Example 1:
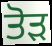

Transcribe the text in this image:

ਤੋਡ਼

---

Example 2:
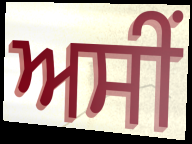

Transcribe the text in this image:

ਅਸੀੰ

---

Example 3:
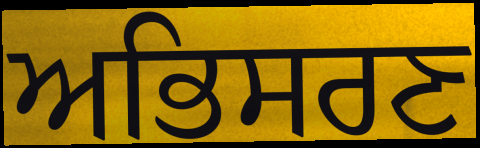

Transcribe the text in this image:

ਅਭਿਸਰਣ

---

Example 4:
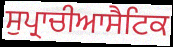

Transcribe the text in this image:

ਸੁਪ੍ਰਾਚੀਆਸੈਟਿਕ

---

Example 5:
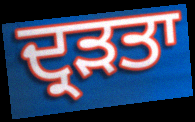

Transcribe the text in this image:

ਦ੍ਰੜਤਾ